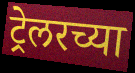
ट्रेलरच्या